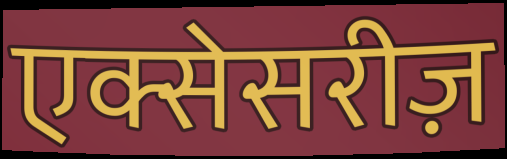
एक्सेसरीज़